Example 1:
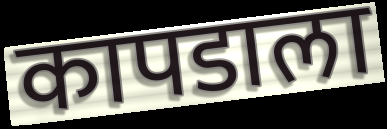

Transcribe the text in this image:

कापडाला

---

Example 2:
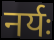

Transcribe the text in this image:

नर्यः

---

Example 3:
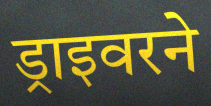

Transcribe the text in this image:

ड्राइवरने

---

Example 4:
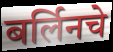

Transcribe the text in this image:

बर्लिनचे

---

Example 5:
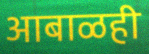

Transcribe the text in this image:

आबाळही